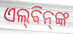
ଏଲ୍‌ଵିନ୍‌ଙ୍କ